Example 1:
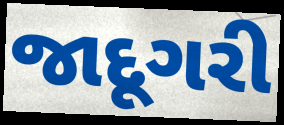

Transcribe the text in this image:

જાદૂગરી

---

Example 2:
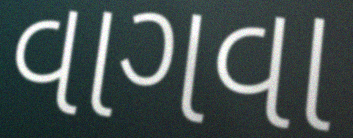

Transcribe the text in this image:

વાગવા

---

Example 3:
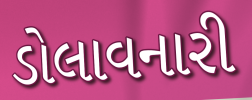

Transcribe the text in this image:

ડોલાવનારી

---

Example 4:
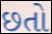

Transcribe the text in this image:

છતો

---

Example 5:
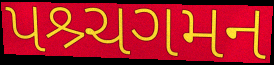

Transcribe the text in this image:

પશ્ર્ચગમન